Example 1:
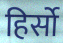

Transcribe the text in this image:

हिर्सो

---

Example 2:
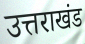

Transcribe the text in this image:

उत्तराखंड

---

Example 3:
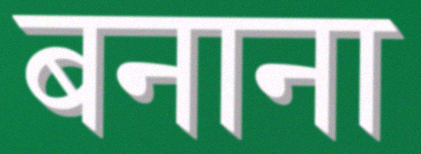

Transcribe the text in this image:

बनाना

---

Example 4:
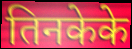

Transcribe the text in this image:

तिनकेके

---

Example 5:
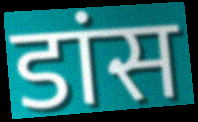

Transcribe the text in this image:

डांस